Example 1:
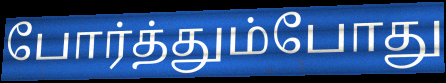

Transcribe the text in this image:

போர்த்தும்போது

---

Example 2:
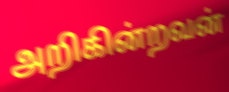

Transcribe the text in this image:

அறிகின்றவன்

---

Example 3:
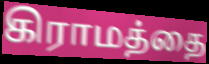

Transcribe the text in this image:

கிராமத்தை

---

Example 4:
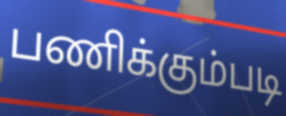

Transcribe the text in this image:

பணிக்கும்படி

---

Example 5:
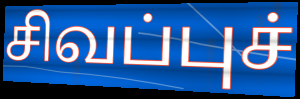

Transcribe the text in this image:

சிவப்புச்